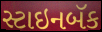
સ્ટાઇનબૅક